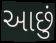
આછું